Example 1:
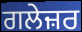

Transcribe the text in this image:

ਗਲੇਜ਼ਰ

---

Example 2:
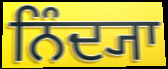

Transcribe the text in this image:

ਨਿੰਦ੍ਯਾ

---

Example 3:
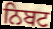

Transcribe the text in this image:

ਨਿਬਟ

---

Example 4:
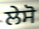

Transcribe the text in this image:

ਲੇਸੋ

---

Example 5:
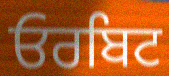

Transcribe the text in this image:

ਓਰਬਿਟ